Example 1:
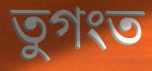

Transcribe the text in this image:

তুগংত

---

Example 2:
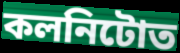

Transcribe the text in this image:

কলনিটোত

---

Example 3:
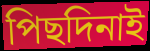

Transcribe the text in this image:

পিছদিনাই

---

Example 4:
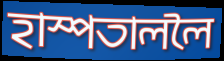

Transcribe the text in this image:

হাস্পতাললৈ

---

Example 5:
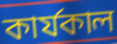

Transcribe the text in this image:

কাৰ্যকাল